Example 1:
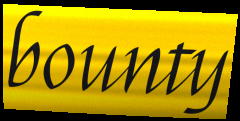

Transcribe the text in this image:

bounty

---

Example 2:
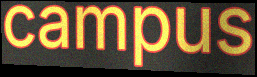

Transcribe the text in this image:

campus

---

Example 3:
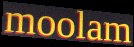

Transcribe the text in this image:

moolam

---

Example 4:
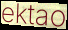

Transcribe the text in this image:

ektao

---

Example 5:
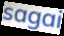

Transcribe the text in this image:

sagai